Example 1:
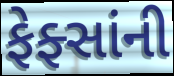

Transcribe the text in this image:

ફેફ્સાંની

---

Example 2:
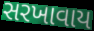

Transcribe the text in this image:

સરખાવાય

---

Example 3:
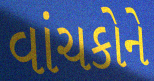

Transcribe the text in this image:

વાંચકોને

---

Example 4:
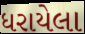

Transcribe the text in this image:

ધરાયેલા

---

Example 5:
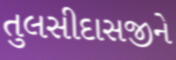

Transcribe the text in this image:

તુલસીદાસજીને